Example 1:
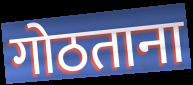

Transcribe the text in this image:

गोठताना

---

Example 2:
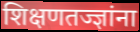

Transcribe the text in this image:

शिक्षणतज्ज्ञांना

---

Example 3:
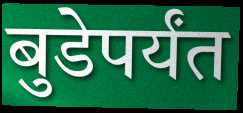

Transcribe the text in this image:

बुडेपर्यंत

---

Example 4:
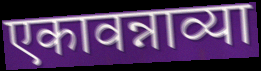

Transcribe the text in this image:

एकावन्नाव्या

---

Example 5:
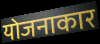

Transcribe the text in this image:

योजनाकार